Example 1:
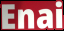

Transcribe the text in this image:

Enai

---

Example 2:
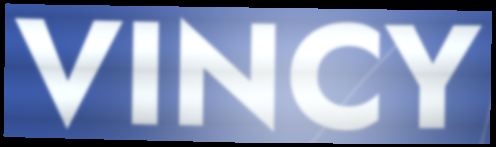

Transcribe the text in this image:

VINCY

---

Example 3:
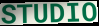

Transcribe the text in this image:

STUDIO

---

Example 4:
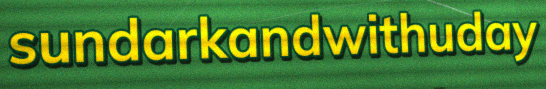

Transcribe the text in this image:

sundarkandwithuday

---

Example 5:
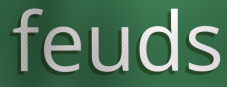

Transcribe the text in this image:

feuds